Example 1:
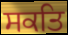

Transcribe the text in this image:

ਸਕਤਿ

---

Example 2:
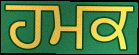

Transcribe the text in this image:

ਹਮਕ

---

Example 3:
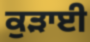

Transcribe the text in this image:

ਕੁੜਾਈ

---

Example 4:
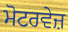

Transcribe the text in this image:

ਮੋਟਰਵੇਜ਼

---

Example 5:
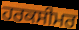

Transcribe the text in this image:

ਹਰਕਸੀਮਰ